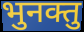
भुनक्तु